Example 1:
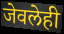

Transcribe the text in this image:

जेवलेही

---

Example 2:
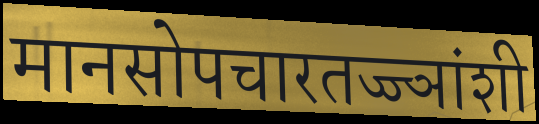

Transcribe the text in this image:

मानसोपचारतज्ज्ञांशी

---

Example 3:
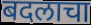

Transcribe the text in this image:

बदलाचा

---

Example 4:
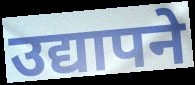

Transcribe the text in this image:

उद्यापने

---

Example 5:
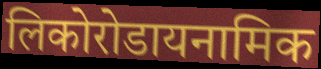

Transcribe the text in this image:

लिकोरोडायनामिक